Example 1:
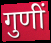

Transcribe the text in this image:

गुणीं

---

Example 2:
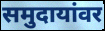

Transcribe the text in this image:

समुदायांवर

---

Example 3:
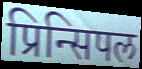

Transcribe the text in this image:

प्रिन्सिपल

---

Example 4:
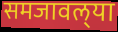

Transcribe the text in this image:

समजावल्या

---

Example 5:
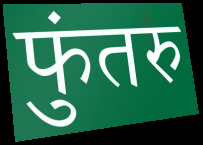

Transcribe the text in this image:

फुंतरु